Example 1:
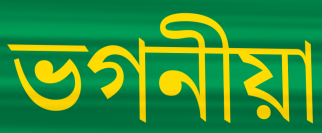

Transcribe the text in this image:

ভগনীয়া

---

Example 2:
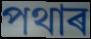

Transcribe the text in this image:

পথাৰ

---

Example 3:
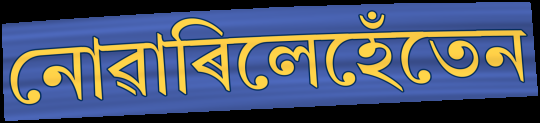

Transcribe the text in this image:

নোৱাৰিলেহেঁতেন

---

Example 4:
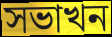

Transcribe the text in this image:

সভাখন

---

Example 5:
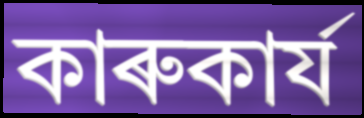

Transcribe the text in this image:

কাৰুকাৰ্য